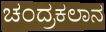
ಚಂದ್ರಕಲಾನ